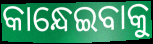
କାନ୍ଧେଇବାକୁ